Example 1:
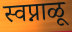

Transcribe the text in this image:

स्वप्नाळू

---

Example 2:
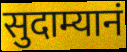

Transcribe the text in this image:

सुदाम्यानं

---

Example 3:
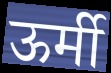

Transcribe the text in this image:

ऊर्मी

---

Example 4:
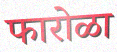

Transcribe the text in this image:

फारोळा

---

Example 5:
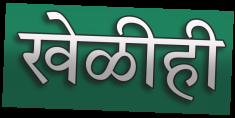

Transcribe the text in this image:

खेळीही